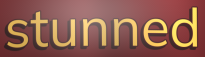
stunned